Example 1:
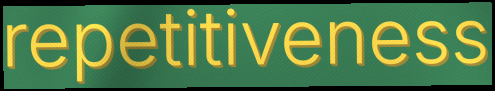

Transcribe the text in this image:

repetitiveness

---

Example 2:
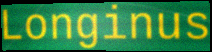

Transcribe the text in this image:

Longinus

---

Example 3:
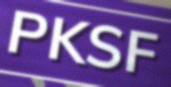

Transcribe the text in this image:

PKSF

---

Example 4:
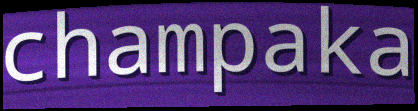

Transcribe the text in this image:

champaka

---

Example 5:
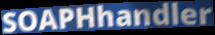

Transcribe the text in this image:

SOAPHhandler